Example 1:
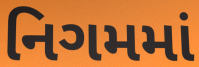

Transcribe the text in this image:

નિગમમાં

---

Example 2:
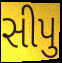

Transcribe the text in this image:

સીપુ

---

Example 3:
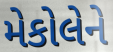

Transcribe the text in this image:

મેકોલેને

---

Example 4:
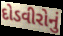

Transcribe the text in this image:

દોડવીરોનું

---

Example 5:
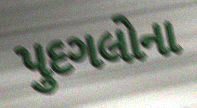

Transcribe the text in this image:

પુદગલોના